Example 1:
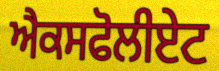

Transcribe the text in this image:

ਐਕਸਫੋਲੀਏਟ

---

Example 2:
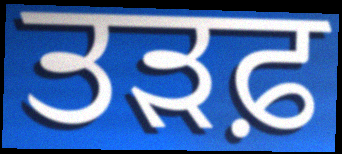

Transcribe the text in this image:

ਤੜਫ਼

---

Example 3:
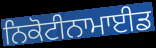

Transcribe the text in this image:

ਨਿਕੋਟੀਨਾਮਾਈਡ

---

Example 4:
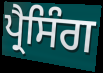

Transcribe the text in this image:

ਪ੍ਰੈਸਿੰਗ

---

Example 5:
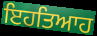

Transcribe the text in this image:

ਇਹਤਿਆਹ